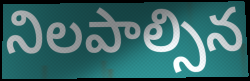
నిలపాల్సిన